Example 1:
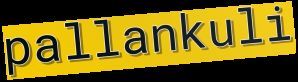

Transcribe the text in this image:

pallankuli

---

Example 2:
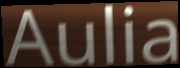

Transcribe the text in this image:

Aulia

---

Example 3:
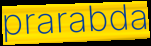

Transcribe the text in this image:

prarabda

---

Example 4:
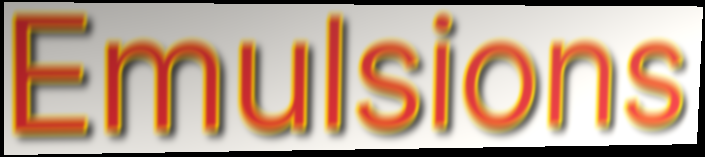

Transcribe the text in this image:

Emulsions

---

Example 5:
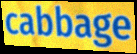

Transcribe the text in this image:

cabbage